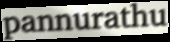
pannurathu